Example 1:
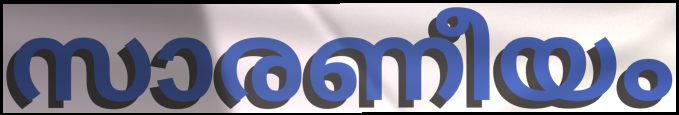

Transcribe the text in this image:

സാരണീയം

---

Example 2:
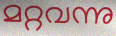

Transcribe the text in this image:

മറ്റവന്നു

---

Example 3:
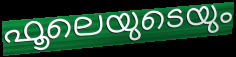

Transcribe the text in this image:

ഫൂലെയുടെയും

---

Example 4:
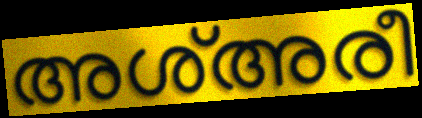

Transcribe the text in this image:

അശ്അരീ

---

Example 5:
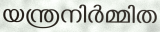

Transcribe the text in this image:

യന്ത്രനിർമ്മിത